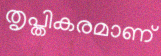
തൃപ്തികരമാണ്